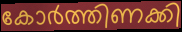
കോർത്തിണക്കി